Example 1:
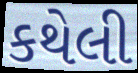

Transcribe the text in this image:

કથેલી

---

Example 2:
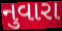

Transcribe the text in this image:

નુવારા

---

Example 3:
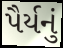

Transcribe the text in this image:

પૈર્યનું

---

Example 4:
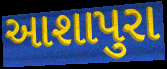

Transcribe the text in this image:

આશાપુરા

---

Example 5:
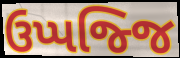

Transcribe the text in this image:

ઉપ્પજ્જિ